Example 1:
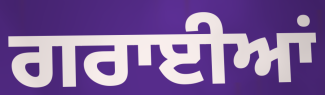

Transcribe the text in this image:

ਗਰਾਈਆਂ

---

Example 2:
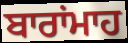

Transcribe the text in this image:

ਬਾਰਾਂਮਾਹ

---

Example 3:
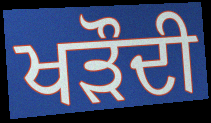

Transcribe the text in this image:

ਖੜੌਦੀ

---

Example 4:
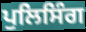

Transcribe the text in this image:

ਪੁਲਿਸਿੰਗ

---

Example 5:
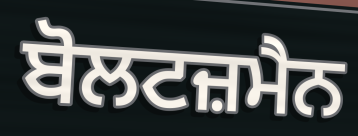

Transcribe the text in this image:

ਬੋਲਟਜ਼ਮੈਨ